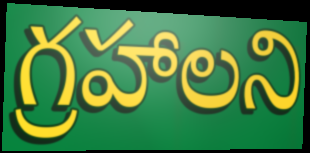
గ్రహాలని